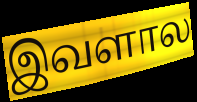
இவளால